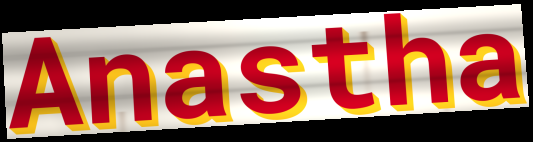
Anastha